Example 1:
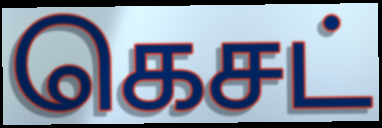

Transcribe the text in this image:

கெசட்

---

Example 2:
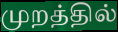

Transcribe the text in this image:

முறத்தில்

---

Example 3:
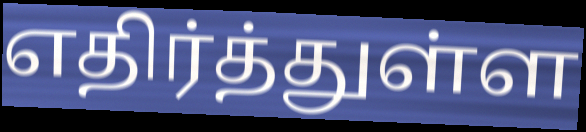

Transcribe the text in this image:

எதிர்த்துள்ள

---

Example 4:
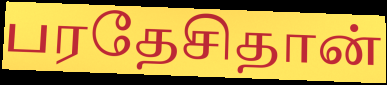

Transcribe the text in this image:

பரதேசிதான்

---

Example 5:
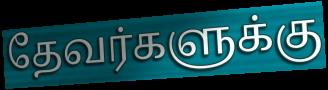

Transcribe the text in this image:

தேவர்களுக்கு